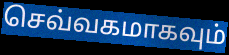
செவ்வகமாகவும்